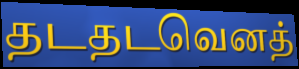
தடதடவெனத்